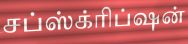
சப்ஸ்க்ரிப்ஷன்